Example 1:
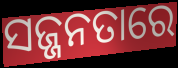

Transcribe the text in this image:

ସଜ୍ଜନତାରେ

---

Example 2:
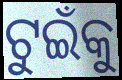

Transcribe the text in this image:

ଟୁଇଁକୁ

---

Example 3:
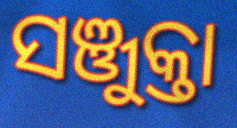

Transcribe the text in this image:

ସଞ୍ଜୁକ୍ତା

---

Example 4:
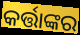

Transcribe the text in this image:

କର୍ତ୍ତାଙ୍କର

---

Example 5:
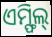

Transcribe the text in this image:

ଏମ୍ଫିଲ୍